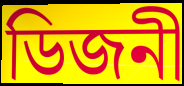
ডিজনী